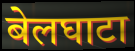
बेलघाटा